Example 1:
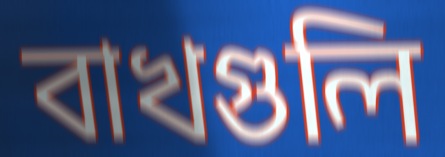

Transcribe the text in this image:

বাখগুলি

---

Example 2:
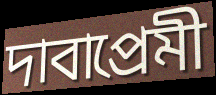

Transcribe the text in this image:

দাবাপ্রেমী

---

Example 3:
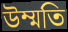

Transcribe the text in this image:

উম্মতি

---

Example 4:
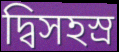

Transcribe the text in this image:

দ্বিসহস্র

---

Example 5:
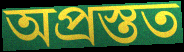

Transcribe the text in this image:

অপ্রস্তত